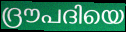
ദ്രൗപദിയെ